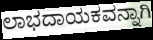
ಲಾಭದಾಯಕವನ್ನಾಗಿ